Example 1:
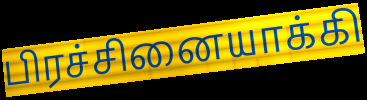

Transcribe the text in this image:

பிரச்சினையாக்கி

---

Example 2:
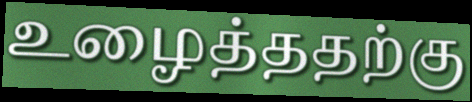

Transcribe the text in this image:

உழைத்ததற்கு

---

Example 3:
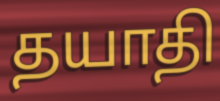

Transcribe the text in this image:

தயாதி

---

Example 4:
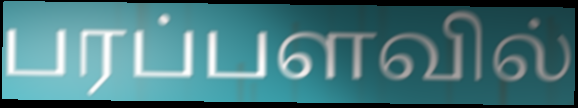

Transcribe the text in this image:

பரப்பளவில்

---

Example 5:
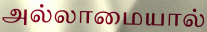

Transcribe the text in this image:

அல்லாமையால்